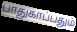
பாதுகாப்பதும்